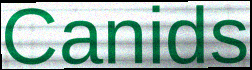
Canids